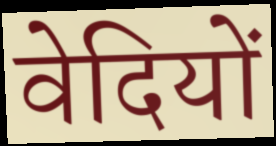
वेदियों